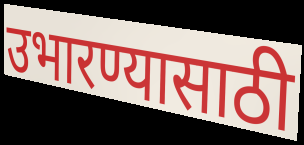
उभारण्यासाठी